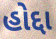
હોદ્દા